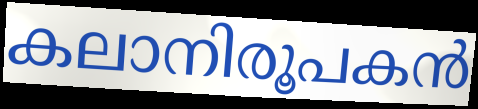
കലാനിരൂപകൻ